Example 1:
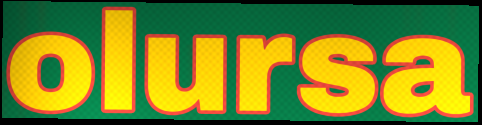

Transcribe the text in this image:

olursa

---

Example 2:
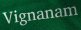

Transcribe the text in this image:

Vignanam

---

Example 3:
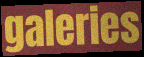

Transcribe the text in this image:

galeries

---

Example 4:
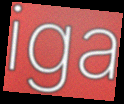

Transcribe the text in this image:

iga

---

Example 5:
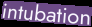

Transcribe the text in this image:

intubation